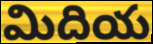
మిదియ